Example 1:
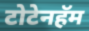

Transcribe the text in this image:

टोटेनहॅम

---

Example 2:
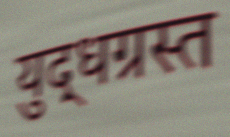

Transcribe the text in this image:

युद्धग्रस्त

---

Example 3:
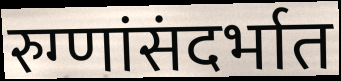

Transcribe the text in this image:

रुग्णांसंदर्भात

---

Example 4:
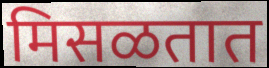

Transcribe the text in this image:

मिसळतात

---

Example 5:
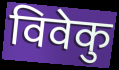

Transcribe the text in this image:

विवेकु